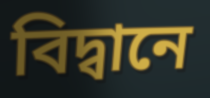
বিদ্বানে